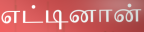
எட்டினான்